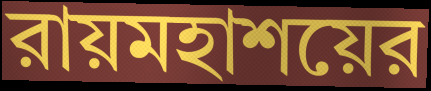
রায়মহাশয়ের